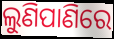
ଲୁଣିପାଣିରେ